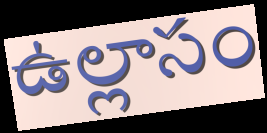
ఉల్లాసం